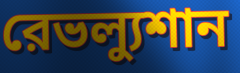
রেভল্যুশান